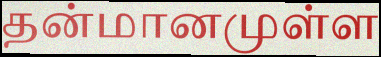
தன்மானமுள்ள